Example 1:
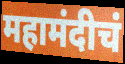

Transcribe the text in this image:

महामंदीचं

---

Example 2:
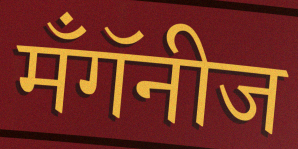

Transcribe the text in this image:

मँगॅनीज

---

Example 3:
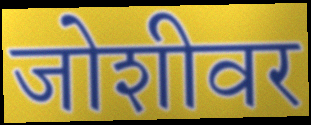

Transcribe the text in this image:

जोशीवर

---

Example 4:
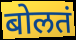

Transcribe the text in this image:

बोलतं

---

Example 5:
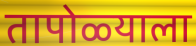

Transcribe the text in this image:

तापोळ्याला